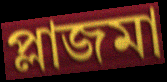
প্লাজমা